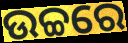
ଉଚ୍ଚରେ